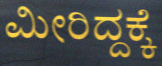
ಮೀರಿದ್ದಕ್ಕೆ